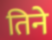
तिने